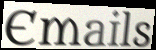
Emails